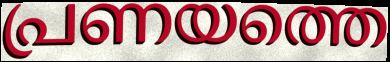
പ്രണയത്തെ